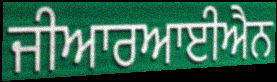
ਜੀਆਰਆਈਐਨ